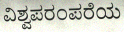
ವಿಶ್ವಪರಂಪರೆಯ